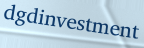
dgdinvestment